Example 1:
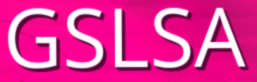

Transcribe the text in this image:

GSLSA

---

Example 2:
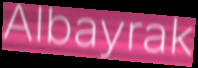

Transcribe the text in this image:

Albayrak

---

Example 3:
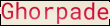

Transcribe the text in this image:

Ghorpade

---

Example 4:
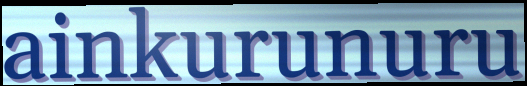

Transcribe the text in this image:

ainkurunuru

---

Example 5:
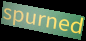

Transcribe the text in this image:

spurned